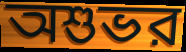
অশুভর